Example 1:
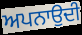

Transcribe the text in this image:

ਅਪਨਾਉਦੀ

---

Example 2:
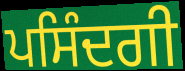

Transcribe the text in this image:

ਪਸਿੰਦਗੀ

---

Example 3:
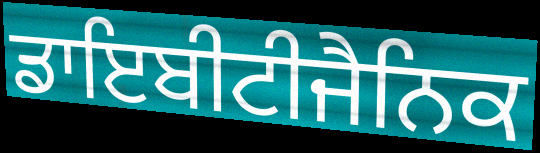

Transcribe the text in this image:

ਡਾਇਬੀਟੀਜੈਨਿਕ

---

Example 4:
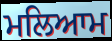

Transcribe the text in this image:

ਮਲਿਆਮ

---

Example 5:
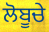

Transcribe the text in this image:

ਲੋਬੂਚੇ